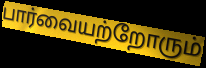
பார்வையற்றோரும்